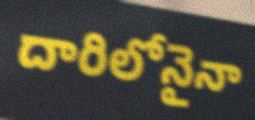
దారిలోనైనా